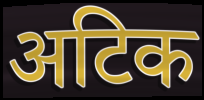
अटिक